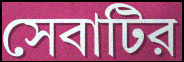
সেবাটির